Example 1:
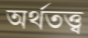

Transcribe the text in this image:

অৰ্থতত্ত্ব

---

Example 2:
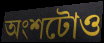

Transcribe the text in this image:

অংশটোও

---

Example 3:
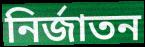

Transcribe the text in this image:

নিৰ্জাতন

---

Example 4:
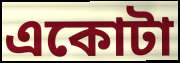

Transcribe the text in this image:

একোটা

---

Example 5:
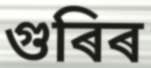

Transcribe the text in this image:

গুৰিৰ